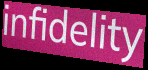
infidelity